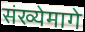
संख्येमागे